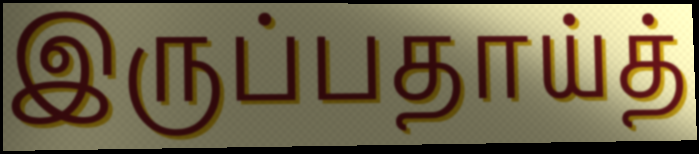
இருப்பதாய்த்